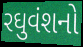
રઘુવંશનો